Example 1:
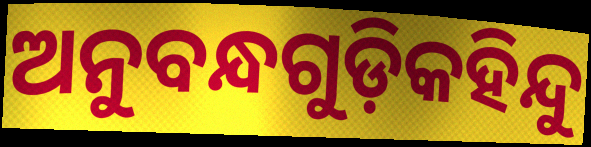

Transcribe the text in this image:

ଅନୁବନ୍ଧଗୁଡ଼ିକହିନ୍ଦୁ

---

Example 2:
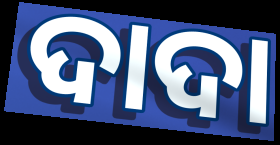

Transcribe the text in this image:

ଦାଦା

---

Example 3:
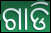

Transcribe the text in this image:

ଗାଡି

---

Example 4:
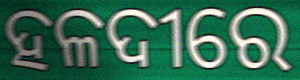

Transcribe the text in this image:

ହଳଦୀରେ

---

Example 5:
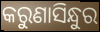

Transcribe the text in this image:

କରୁଣାସିନ୍ଧୁର